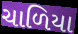
ચાળિયા